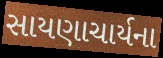
સાયણાચાર્યના